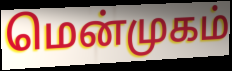
மென்முகம்